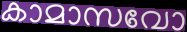
കാമാസവോ